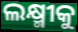
ଲକ୍ଷ୍ମୀକୁ